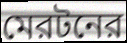
মেরটনের